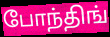
போந்திங்